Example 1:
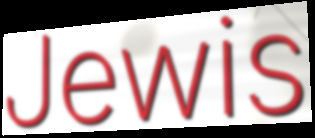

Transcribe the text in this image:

Jewis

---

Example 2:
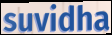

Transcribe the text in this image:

suvidha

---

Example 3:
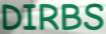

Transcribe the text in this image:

DIRBS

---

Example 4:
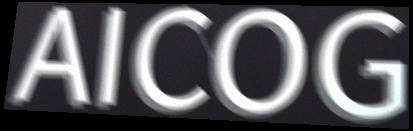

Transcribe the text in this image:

AICOG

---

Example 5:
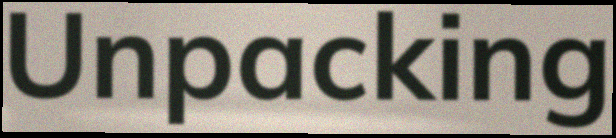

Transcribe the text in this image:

Unpacking